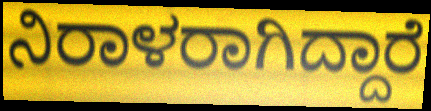
ನಿರಾಳರಾಗಿದ್ದಾರೆ